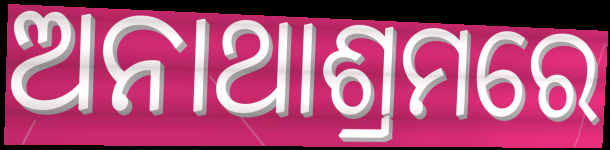
ଅନାଥାଶ୍ରମରେ